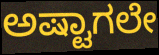
ಅಷ್ಟಾಗಲೇ